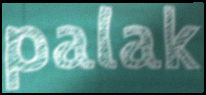
palak